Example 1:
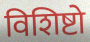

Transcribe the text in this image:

विशिष्टो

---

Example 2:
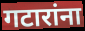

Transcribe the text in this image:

गटारांना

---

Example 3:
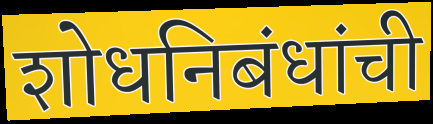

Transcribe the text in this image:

शोधनिबंधांची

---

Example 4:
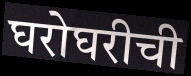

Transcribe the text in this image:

घरोघरीची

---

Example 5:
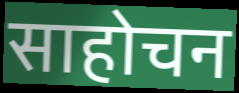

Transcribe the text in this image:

साहोचन